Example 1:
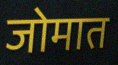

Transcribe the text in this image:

जोमात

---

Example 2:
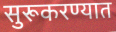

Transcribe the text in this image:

सुरूकरण्यात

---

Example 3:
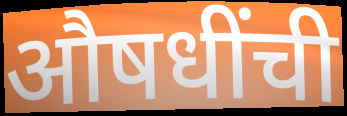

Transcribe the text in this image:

औषधींची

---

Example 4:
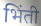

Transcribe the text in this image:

भिंती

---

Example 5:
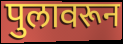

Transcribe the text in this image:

पुलावरून